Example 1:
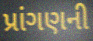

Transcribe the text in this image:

પ્રાંગણની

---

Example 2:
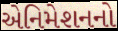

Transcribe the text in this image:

એનિમેશનનો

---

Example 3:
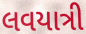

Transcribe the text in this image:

લવયાત્રી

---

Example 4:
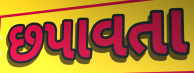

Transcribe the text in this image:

છપાવતા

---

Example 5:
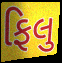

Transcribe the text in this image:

ફિલુ